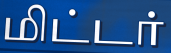
மிட்டர்